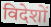
विदेशों